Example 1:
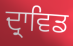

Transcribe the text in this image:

ਦ੍ਰਾਵਿਡ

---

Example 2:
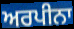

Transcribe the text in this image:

ਅਰਪੀਨਾ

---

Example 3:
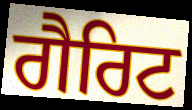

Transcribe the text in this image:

ਗੈਰਿਟ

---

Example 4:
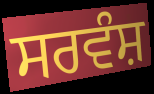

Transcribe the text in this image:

ਸਰਵੰਸ਼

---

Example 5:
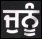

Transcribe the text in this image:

ਜੁਨੂੰ